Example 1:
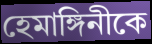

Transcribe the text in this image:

হেমাঙ্গিনীকে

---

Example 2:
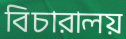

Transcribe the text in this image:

বিচারালয়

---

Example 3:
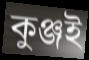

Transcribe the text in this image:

কুঞ্জই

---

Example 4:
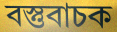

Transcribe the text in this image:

বস্তুবাচক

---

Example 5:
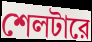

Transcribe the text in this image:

শেলটারে